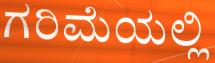
ಗರಿಮೆಯಲ್ಲಿ